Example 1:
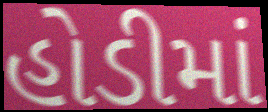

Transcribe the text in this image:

હોડીમાં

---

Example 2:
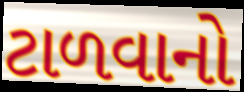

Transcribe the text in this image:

ટાળવાનો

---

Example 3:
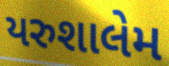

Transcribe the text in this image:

યરુશાલેમ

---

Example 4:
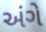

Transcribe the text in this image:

અંગે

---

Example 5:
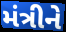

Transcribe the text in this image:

મંત્રીને